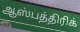
ஆஸ்பத்திரிக்